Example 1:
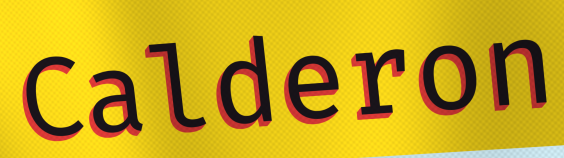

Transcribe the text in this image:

Calderon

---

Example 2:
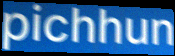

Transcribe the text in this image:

pichhun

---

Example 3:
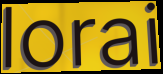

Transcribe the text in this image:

lorai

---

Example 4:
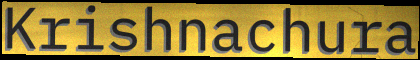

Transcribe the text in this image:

Krishnachura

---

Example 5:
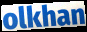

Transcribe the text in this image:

olkhan